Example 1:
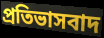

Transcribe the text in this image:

প্রতিভাসবাদ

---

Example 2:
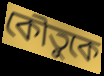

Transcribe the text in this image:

কৌতুকে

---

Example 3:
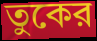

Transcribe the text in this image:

তুকের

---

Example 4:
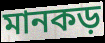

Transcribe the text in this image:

মানকড়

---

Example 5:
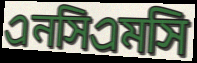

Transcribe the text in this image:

এনসিএমসি